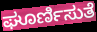
ಘೂರ್ಣಿಸುತೆ